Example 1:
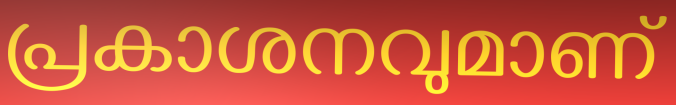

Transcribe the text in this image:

പ്രകാശനവുമാണ്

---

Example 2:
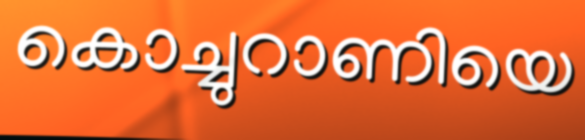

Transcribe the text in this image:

കൊച്ചുറാണിയെ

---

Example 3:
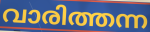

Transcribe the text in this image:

വാരിത്തന്ന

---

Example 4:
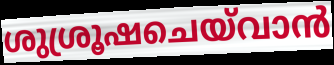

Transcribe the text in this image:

ശുശ്രൂഷചെയ്‌വാൻ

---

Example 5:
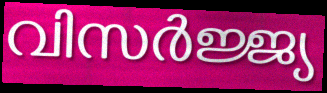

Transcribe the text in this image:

വിസർജ്ജ്യ